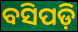
ବସିପଡ଼ି